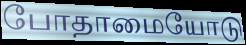
போதாமையோடு